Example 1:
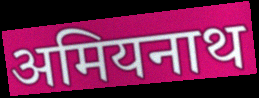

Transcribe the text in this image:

अमियनाथ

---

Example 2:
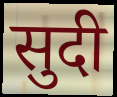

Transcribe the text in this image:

सुदी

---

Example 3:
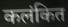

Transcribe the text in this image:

कलंकित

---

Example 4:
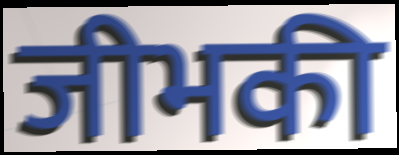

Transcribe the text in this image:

जीभकी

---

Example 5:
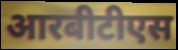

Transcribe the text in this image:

आरबीटीएस